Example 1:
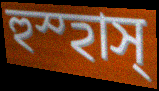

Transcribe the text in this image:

হুস্হাস্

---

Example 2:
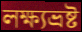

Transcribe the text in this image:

লক্ষ্যভ্রষ্ট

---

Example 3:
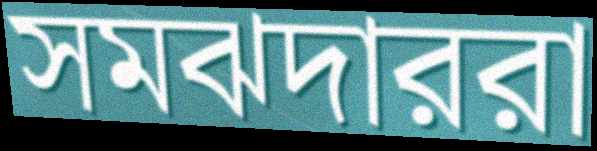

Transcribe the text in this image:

সমঝদাররা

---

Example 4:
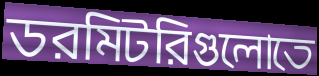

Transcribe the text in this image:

ডরমিটরিগুলোতে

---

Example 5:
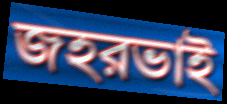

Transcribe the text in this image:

জহরভাই